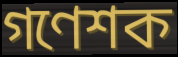
গণেশক